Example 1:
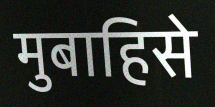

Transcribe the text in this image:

मुबाहिसे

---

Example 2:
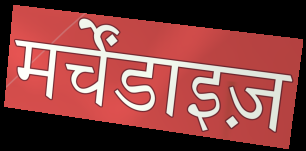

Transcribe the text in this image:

मर्चेंडाइज़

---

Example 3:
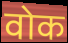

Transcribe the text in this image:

वोक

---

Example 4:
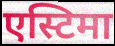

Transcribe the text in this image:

एस्टिमा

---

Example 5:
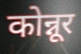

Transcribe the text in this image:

कोन्नूर